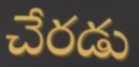
చేరడు